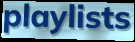
playlists